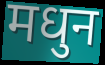
मधुन